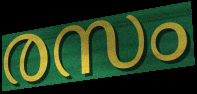
രസം